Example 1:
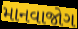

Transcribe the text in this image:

માનવાજોગ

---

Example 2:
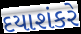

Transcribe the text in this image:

દયાશંકરે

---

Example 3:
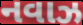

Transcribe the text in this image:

નવાઝ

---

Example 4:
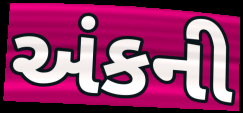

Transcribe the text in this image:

અંકની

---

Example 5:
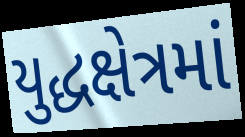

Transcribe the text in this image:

યુદ્ધક્ષેત્રમાં